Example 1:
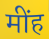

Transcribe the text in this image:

मींह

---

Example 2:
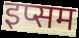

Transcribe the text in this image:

इप्सम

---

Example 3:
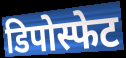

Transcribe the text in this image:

डिपोस्फेट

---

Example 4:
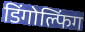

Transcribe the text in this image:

डिंगोल्फिंग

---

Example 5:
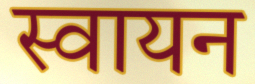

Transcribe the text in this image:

स्वायन